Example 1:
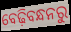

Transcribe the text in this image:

ବେଢ଼ିବନ୍ଧନରୁ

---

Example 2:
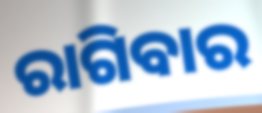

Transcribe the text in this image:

ରାଗିବାର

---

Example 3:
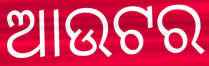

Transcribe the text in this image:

ଆଉଟର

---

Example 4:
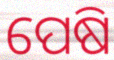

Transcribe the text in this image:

ପେଷି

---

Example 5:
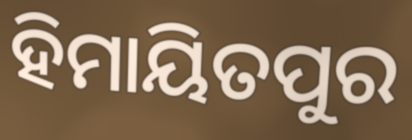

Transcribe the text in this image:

ହିମାୟିତପୁର